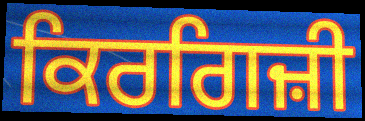
ਕਿਰਗਿਜ਼ੀ